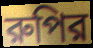
রুপির